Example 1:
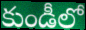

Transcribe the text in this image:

కుండీలో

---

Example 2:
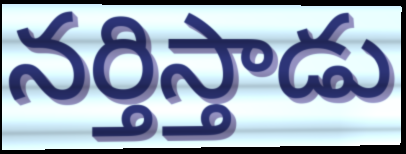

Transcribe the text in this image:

నర్తిస్తాడు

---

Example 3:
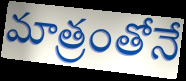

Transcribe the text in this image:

మాత్రంతోనే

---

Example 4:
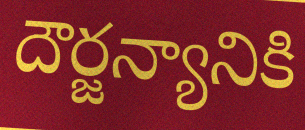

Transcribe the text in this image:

దౌర్జన్యానికి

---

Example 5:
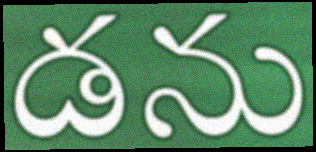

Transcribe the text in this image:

డను